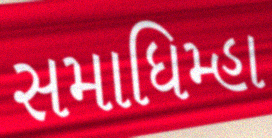
સમાધિમ્હા